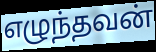
எழுந்தவன்